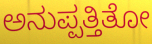
ಅನುಪ್ಪತ್ತಿತೋ